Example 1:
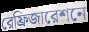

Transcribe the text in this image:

রেফ্রিজারেশনে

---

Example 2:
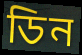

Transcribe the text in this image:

ডিন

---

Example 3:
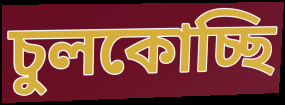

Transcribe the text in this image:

চুলকোচ্ছি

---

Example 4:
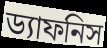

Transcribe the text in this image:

ড্যাফনিস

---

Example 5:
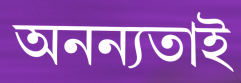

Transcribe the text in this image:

অনন্যতাই